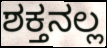
ಶಕ್ತನಲ್ಲ